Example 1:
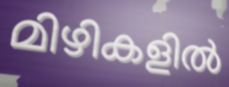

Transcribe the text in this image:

മിഴികളിൽ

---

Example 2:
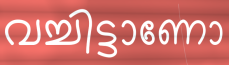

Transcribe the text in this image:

വച്ചിട്ടാണോ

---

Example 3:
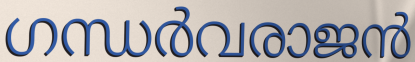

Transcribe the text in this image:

ഗന്ധർവരാജൻ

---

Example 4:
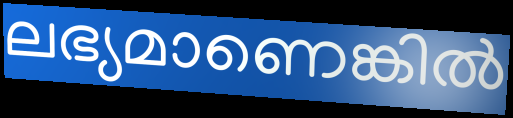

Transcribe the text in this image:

ലഭ്യമാണെങ്കിൽ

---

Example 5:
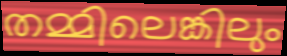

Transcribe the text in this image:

തമ്മിലെങ്കിലും